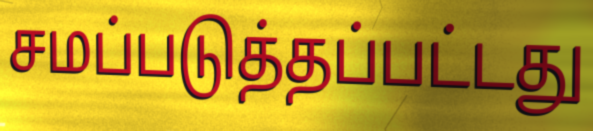
சமப்படுத்தப்பட்டது